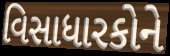
વિસાધારકોને